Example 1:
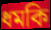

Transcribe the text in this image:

ধমকি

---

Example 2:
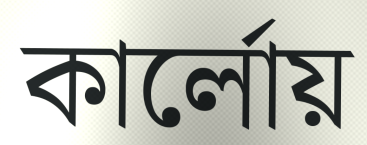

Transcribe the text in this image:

কার্লোয়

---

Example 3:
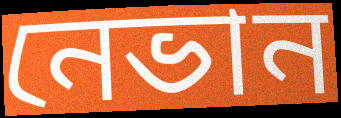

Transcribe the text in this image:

নেভান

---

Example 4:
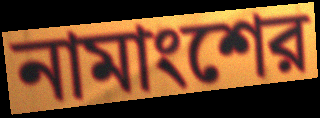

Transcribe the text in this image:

নামাংশের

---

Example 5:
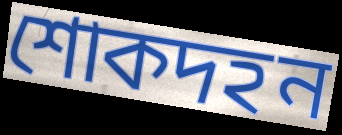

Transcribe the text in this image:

শোকদহন